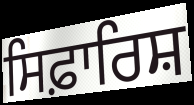
ਸਿਫ਼ਾਰਿਸ਼